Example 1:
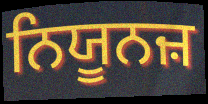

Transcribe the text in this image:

ਨਿਯੂਨਜ਼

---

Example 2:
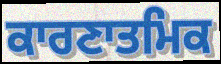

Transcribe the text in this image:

ਕਾਰਣਾਤਮਿਕ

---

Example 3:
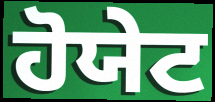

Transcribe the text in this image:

ਹੋਯੇਟ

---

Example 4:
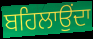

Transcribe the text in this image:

ਬਹਿਲਾਉਂਦਾ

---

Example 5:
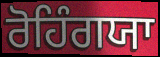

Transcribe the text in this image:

ਰੋਹਿੰਗਯਾ